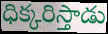
ధిక్కరిస్తాడు